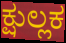
ಕ್ಷುಲ್ಲಕ